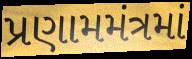
પ્રણામમંત્રમાં